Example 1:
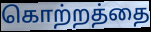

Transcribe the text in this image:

கொற்றத்தை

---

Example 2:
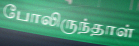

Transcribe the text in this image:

போலிருந்தாள்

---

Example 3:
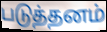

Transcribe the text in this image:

படுத்தனம்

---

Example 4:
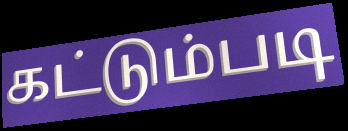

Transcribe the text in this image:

கட்டும்படி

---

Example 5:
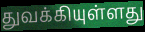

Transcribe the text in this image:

துவக்கியுள்ளது